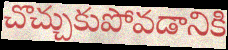
చొచ్చుకుపోవడానికి